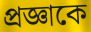
প্রজ্ঞাকে